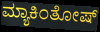
ಮ್ಯಾಕಿಂತೋಷ್